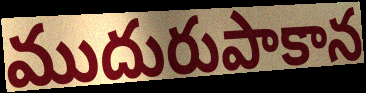
ముదురుపాకాన